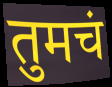
तुमचं